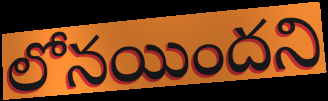
లోనయిందని